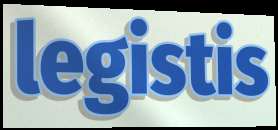
legistis